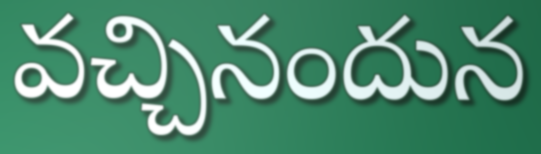
వచ్చినందున